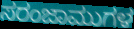
ಸರಂಜಾಮುಗಳ